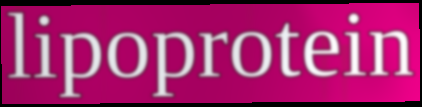
lipoprotein